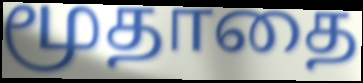
மூதாதை